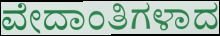
ವೇದಾಂತಿಗಳಾದ